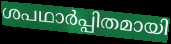
ശപഥാർപ്പിതമായി